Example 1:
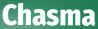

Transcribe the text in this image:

Chasma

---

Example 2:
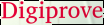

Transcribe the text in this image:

Digiprove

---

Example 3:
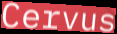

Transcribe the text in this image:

Cervus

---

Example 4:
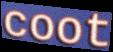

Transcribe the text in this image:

coot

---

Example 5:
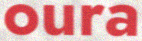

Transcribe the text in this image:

oura